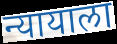
न्यायाला